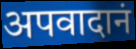
अपवादानं